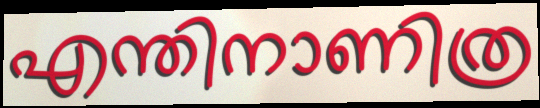
എന്തിനാണിത്ര